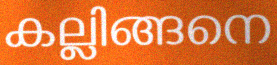
കല്ലിങ്ങനെ